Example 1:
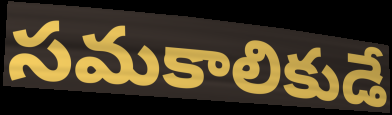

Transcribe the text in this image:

సమకాలికుడే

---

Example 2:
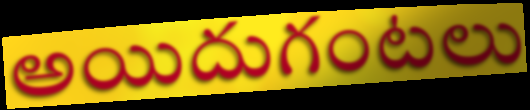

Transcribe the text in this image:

అయిదుగంటలు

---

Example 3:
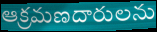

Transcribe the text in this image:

ఆక్రమణదారులను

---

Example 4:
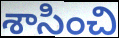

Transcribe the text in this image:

శాసించి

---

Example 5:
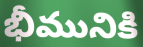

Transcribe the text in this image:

భీమునికి